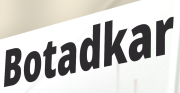
Botadkar